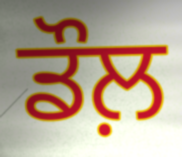
ਡੌਲ਼